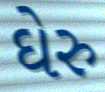
ઘેરુ